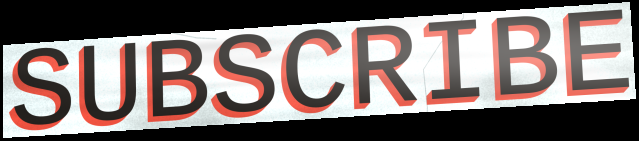
SUBSCRIBE